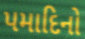
પમાદિનો